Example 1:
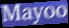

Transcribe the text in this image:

Mayoo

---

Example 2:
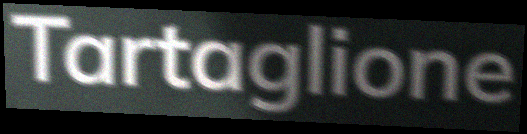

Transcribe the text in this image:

Tartaglione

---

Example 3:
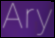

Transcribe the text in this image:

Ary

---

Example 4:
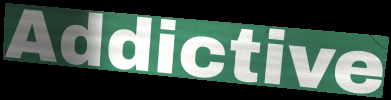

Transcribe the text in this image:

Addictive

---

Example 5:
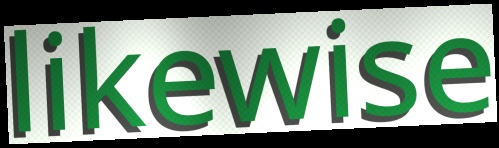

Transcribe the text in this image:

likewise